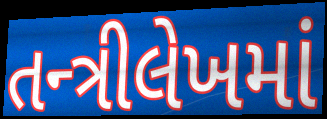
તન્ત્રીલેખમાં